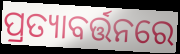
ପ୍ରତ୍ୟାବର୍ତ୍ତନରେ